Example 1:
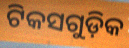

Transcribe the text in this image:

ଟିକସଗୁଡ଼ିକ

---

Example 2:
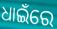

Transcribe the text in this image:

ଧାଇଁରେ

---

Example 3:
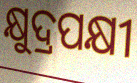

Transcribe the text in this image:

କ୍ଷୁଦ୍ରପକ୍ଷୀ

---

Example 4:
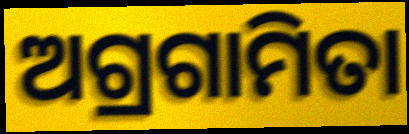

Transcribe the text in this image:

ଅଗ୍ରଗାମିତା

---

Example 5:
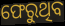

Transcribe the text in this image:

ଫେରୁଥିବ